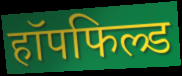
हॉपफिल्ड